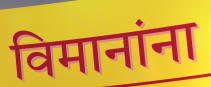
विमानांना